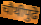
चौथीपुढे